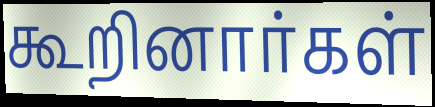
கூறினார்கள்